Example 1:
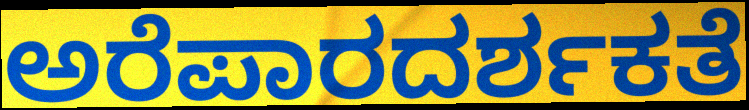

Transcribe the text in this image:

ಅರೆಪಾರದರ್ಶಕತೆ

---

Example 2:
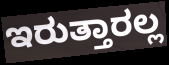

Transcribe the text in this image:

ಇರುತ್ತಾರಲ್ಲ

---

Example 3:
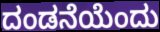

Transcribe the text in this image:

ದಂಡನೆಯೆಂದು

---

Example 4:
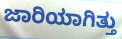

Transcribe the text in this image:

ಜಾರಿಯಾಗಿತ್ತು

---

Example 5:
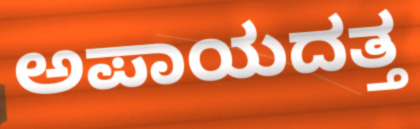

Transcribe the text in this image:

ಅಪಾಯದತ್ತ